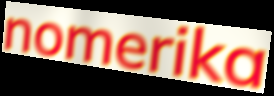
nomerika